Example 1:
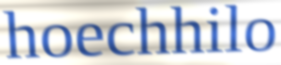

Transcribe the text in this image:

hoechhilo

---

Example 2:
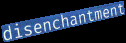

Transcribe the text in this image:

disenchantment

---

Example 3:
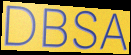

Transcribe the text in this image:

DBSA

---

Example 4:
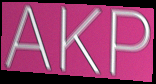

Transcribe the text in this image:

AKP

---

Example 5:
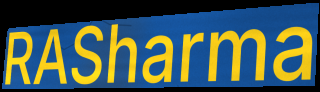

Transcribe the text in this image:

RASharma